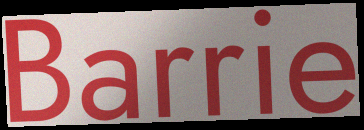
Barrie